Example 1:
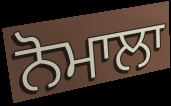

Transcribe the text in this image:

ਨੋਮਾਲਾ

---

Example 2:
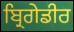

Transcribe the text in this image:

ਬ੍ਰਿਗੇਡੀਰ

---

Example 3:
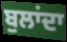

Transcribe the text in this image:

ਬੁਲਾਂਦਾ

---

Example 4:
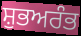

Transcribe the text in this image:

ਸ਼ੁਭਅਰੰਭ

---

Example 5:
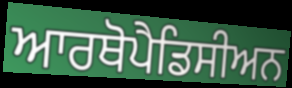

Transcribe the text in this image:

ਆਰਥੋਪੈਡਿਸੀਅਨ